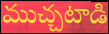
ముచ్చటాడి